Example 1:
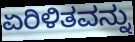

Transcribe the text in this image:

ಏರಿಳಿತವನ್ನು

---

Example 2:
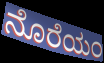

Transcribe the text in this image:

ನೊರೆಯಂ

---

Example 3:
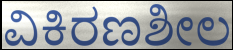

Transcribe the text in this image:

ವಿಕಿರಣಶೀಲ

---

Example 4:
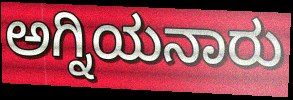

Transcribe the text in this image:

ಅಗ್ನಿಯನಾರು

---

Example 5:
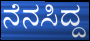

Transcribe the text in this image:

ನೆನಸಿದ್ದ